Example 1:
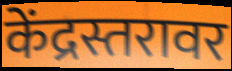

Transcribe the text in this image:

केंद्रस्तरावर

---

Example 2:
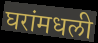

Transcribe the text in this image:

घरांमधली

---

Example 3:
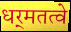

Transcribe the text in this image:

धर्मतत्वे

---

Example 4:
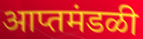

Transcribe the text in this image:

आप्तमंडळी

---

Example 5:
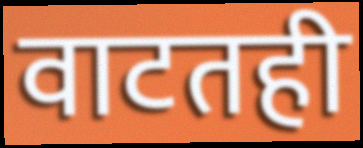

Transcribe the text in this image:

वाटतही